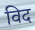
विद